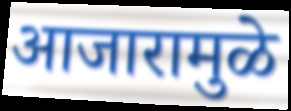
आजारामुळे